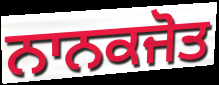
ਨਾਨਕਜੋਤ